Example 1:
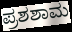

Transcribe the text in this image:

ಪ್ರಶಶಾಮ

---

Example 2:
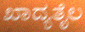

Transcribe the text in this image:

ಖಾದ್ಯತೈಲ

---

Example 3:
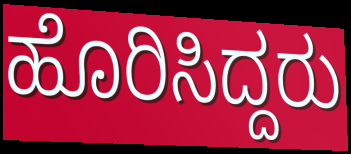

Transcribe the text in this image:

ಹೊರಿಸಿದ್ದರು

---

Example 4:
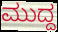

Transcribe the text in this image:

ಮುದ್ದ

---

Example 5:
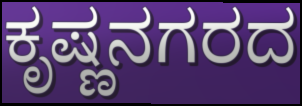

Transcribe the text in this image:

ಕೃಷ್ಣನಗರದ